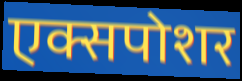
एक्सपोशर